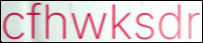
cfhwksdr